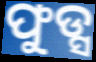
ଫୁଡ୍ସ